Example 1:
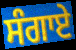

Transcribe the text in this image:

ਸੰਗਾਏ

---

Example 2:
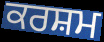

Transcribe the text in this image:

ਕਰਸ਼ਮ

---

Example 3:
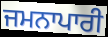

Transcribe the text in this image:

ਜਮਨਾਪਾਰੀ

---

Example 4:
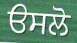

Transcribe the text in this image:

ੳਸਲੋ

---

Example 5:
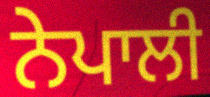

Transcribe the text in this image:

ਨੇਪਾਲੀ